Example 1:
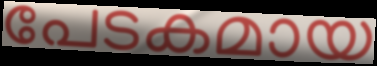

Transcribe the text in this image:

പേടകമായ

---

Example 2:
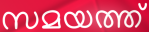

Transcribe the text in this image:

സമയത്ത്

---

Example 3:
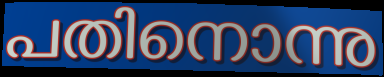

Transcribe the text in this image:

പതിനൊന്നു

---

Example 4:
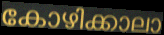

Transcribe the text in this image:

കോഴിക്കാലാ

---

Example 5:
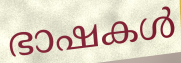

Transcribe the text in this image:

ഭാഷകൾ